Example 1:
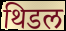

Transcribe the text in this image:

थिडल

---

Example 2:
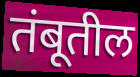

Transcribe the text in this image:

तंबूतील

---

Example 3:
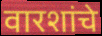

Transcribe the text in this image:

वारशांचे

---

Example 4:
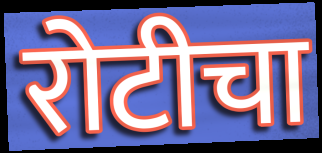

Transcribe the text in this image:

रोटीचा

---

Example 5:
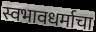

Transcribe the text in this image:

स्वभावधर्माचा